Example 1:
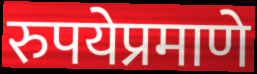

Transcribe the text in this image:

रुपयेप्रमाणे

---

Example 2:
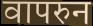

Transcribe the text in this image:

वापरुन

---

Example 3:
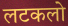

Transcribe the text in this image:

लटकलो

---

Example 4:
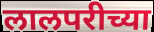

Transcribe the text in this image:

लालपरीच्या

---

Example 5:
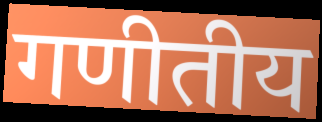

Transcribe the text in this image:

गणीतीय